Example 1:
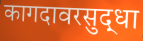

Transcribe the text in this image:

कागदावरसुद्धा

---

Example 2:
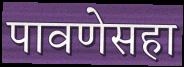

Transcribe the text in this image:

पावणेसहा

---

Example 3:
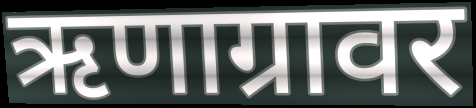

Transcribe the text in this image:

ऋणाग्रावर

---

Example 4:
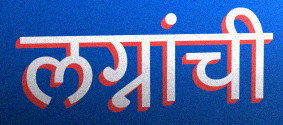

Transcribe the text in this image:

लग्नांची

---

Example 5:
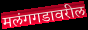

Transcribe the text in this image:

मलंगगडावरील